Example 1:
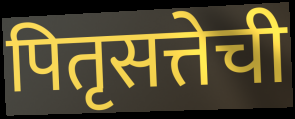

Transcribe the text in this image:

पितृसत्तेची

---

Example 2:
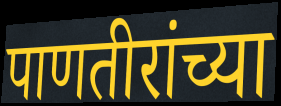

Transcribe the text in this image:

पाणतीरांच्या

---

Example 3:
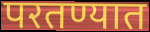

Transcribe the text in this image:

परतण्यात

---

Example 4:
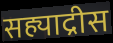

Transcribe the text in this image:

सह्याद्रीस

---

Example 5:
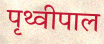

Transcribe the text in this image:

पृथ्वीपाल